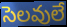
సెలవులే